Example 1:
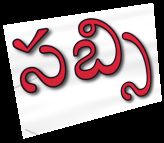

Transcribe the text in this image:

సబ్సి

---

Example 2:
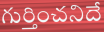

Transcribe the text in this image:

గుర్తించనిదే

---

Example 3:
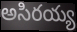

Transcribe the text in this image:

అసిరయ్య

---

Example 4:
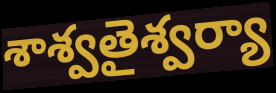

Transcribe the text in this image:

శాశ్వతైశ్వర్యా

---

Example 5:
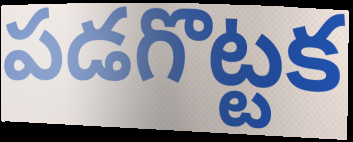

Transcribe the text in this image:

పడగొట్టక